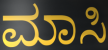
ಮಾಸಿ